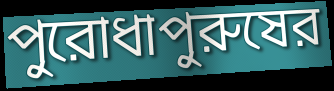
পুরোধাপুরুষের